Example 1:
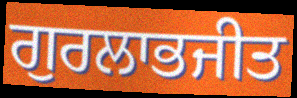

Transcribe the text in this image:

ਗੁਰਲਾਭਜੀਤ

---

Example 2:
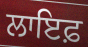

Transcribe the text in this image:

ਲਾਇਫ਼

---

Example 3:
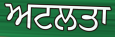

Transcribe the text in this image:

ਅਟਲਤਾ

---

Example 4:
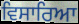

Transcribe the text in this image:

ਵਿਸਾਰਿਆ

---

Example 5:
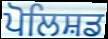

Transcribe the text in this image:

ਪੋਲਿਸ਼ਡ